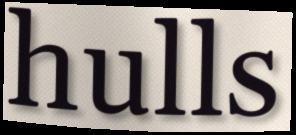
hulls